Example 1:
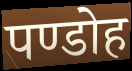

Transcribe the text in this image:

पण्डोह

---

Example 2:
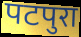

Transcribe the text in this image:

पटपुरा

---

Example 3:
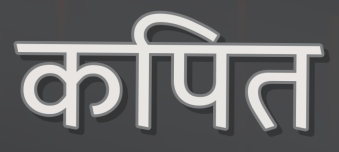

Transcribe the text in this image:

कपित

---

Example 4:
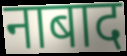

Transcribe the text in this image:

नाबाद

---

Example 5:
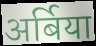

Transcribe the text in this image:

अर्बिया